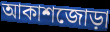
আকাশজোড়া